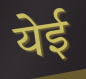
येई